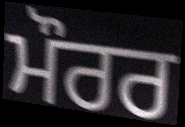
ਮੌਰਰ